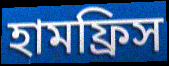
হামফ্রিস